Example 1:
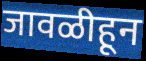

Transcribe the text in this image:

जावळीहून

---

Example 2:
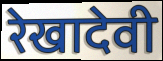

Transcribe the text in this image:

रेखादेवी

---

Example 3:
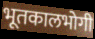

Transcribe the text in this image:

भूतकालभोगी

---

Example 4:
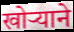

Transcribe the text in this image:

खोऱ्याने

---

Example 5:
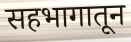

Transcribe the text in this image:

सहभागातून